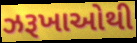
ઝરૂખાઓથી